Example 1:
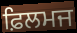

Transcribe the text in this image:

ਫ਼ਿਲਮਜ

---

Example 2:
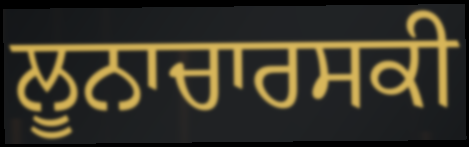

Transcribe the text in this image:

ਲੂਨਾਚਾਰਸਕੀ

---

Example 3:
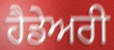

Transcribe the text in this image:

ਹੈਡੇਅਰੀ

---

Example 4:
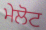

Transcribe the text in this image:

ਮੇਲੋਟ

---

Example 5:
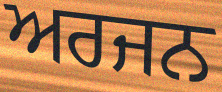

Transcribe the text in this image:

ਅਰਜਨ